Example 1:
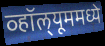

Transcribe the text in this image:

व्हॉल्यूममध्ये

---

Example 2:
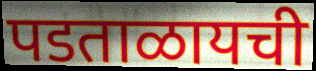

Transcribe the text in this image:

पडताळायची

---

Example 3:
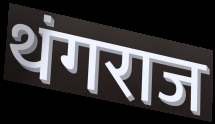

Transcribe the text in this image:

थंगराज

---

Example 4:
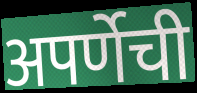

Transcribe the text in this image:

अपर्णेची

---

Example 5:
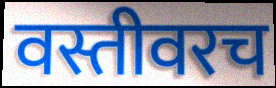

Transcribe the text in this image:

वस्तीवरच